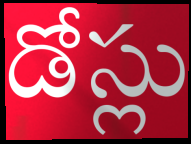
డోస్లు